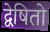
द्वेषितो